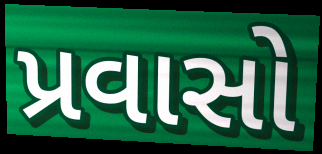
પ્રવાસો